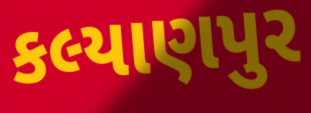
કલ્યાણપુર